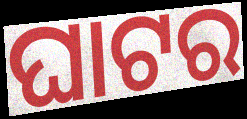
ଘାଟର